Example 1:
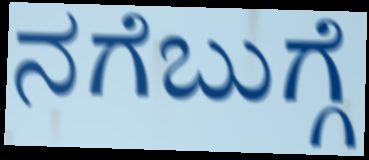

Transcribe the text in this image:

ನಗೆಬುಗ್ಗೆ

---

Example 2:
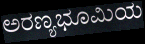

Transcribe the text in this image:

ಅರಣ್ಯಭೂಮಿಯ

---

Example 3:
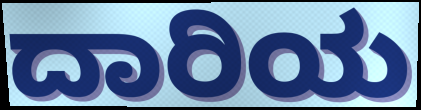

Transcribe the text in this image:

ದಾರಿಯ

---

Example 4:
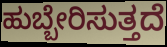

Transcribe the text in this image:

ಹುಬ್ಬೇರಿಸುತ್ತದೆ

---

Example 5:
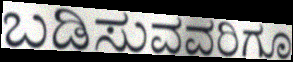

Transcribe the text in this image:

ಬಡಿಸುವವರಿಗೂ